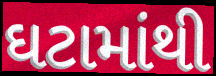
ઘટામાંથી